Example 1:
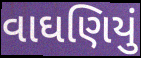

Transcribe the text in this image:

વાઘણિયું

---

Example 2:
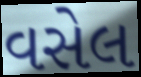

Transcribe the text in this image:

વસેલ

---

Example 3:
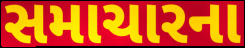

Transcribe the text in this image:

સમાચારના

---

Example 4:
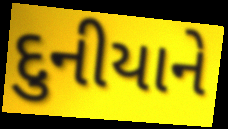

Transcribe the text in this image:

દુનીયાને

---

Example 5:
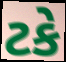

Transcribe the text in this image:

ટકે